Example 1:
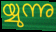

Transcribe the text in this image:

യ്യുന്നു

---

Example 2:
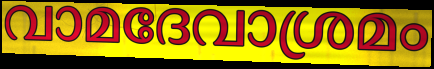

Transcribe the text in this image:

വാമദേവാശ്രമം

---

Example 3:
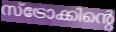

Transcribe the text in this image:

സ്ട്രോക്കിന്റെ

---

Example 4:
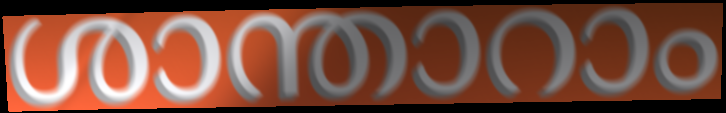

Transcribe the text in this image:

ശാന്താറാം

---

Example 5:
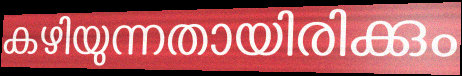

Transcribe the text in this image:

കഴിയുന്നതായിരിക്കും